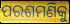
ପରଶମଣିକୁ